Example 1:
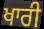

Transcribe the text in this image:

ਖਾਰੀ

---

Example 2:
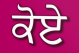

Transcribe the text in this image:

ਕੋਏ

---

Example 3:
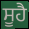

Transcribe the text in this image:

ਸੂਹੈ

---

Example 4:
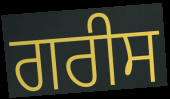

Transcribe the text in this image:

ਗਰੀਸ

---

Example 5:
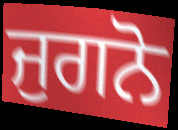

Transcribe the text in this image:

ਜੁਗਨੋ